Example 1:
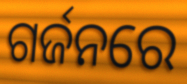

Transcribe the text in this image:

ଗର୍ଜନରେ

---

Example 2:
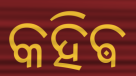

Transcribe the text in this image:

କହିଵ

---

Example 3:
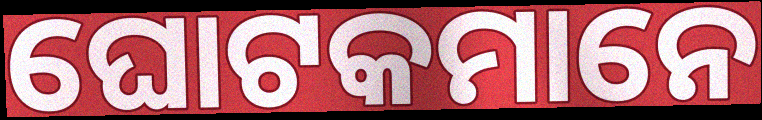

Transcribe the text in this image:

ଘୋଟକମାନେ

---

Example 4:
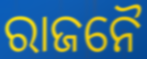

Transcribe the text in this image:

ରାଜନୈ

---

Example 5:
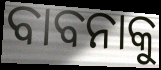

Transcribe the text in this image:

ବାବନାକୁ